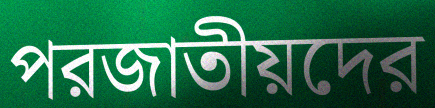
পরজাতীয়দের